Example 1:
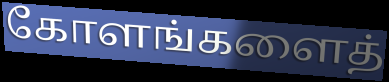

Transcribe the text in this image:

கோளங்களைத்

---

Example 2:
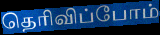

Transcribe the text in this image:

தெரிவிப்போம்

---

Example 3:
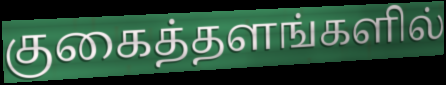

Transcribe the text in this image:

குகைத்தளங்களில்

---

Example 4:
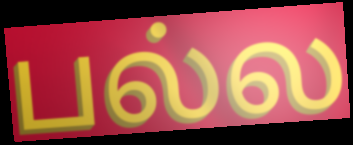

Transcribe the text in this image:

பல்ல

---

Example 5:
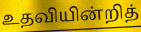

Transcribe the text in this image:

உதவியின்றித்